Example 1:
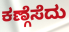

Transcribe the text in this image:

ಕಣ್ಗೆಸೆದು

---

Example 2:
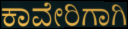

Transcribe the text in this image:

ಕಾವೇರಿಗಾಗಿ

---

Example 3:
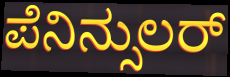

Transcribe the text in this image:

ಪೆನಿನ್ಸುಲರ್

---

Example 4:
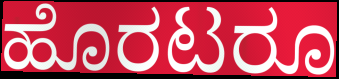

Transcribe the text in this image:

ಹೊರಟರೂ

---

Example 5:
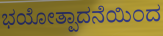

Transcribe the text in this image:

ಭಯೋತ್ಪಾದನೆಯಿಂದ